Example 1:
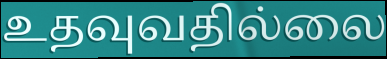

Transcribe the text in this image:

உதவுவதில்லை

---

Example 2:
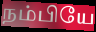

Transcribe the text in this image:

நம்பியே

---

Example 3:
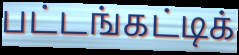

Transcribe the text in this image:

பட்டங்கட்டிக்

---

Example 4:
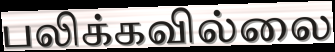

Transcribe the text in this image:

பலிக்கவில்லை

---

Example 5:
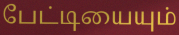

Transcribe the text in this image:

பேட்டியையும்